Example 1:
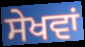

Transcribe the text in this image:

ਸੇਖਵਾਂ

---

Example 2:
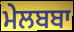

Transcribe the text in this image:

ਮੇਲਬਬਾ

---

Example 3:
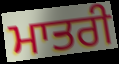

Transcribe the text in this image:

ਮਾਤਰੀ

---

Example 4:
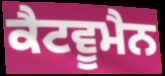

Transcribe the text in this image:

ਕੈਟਵੂਮੈਨ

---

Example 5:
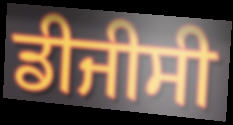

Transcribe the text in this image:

ਡੀਜੀਸੀ